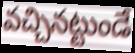
వచ్చినట్టుండే